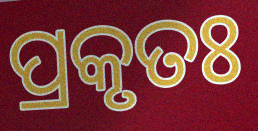
ପ୍ରକୃତଃ